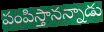
పంపిస్తానన్నాడు